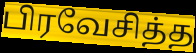
பிரவேசித்த